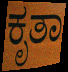
ಕೃತಾ